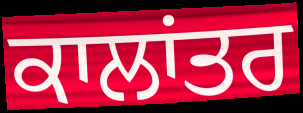
ਕਾਲਾਂਤਰ